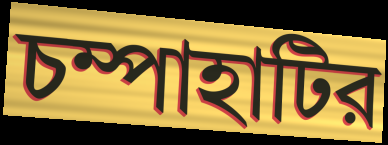
চম্পাহাটির